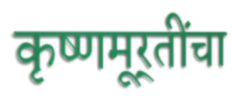
कृष्णमूर्तींचा